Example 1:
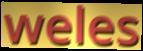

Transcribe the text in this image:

weles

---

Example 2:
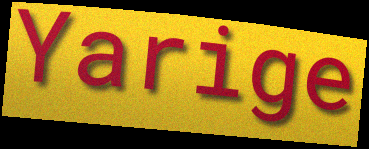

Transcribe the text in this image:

Yarige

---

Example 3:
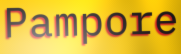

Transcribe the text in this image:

Pampore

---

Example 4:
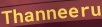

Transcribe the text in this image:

Thanneeru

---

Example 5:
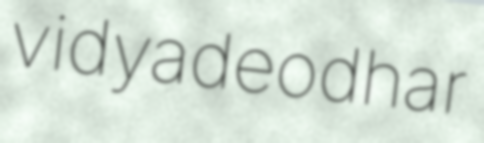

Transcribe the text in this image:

vidyadeodhar